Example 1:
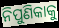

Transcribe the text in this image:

ନିପୁଣିକାକୁ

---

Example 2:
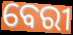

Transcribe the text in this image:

ବେରୀ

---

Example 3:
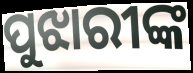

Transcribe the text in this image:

ପୁଝାରୀଙ୍କ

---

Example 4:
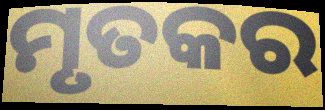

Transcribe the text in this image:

ମୃତକର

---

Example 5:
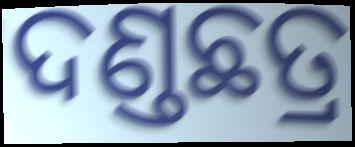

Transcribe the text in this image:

ଦଣ୍ଡଛତ୍ର